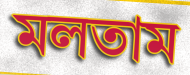
মলতাম